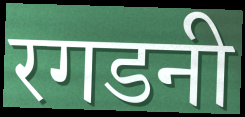
रगडनी